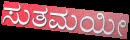
ಸುತಮಯೀ